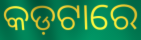
କଡ଼ଟାରେ